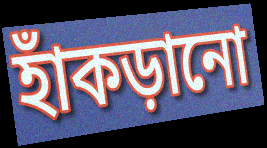
হাঁকড়ানো